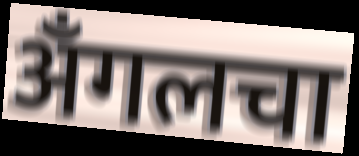
अँगलचा